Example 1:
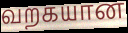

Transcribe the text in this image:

வறகயான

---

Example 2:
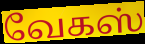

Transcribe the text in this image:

வேகஸ்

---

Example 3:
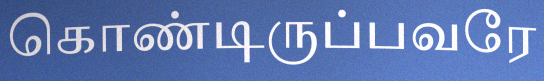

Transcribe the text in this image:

கொண்டிருப்பவரே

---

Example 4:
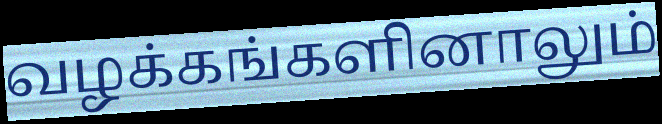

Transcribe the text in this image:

வழக்கங்களினாலும்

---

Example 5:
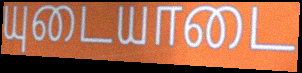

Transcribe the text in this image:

யுடையாடை